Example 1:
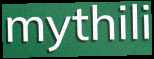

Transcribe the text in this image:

mythili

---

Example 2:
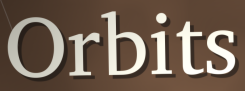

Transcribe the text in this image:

Orbits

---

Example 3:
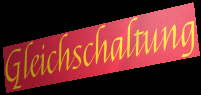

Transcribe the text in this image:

Gleichschaltung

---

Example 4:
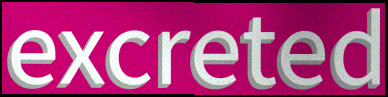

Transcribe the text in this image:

excreted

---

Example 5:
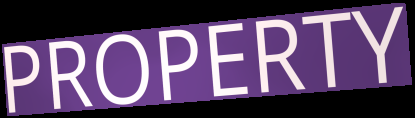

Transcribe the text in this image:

PROPERTY